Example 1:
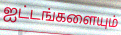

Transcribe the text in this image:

ஐட்டங்களையும்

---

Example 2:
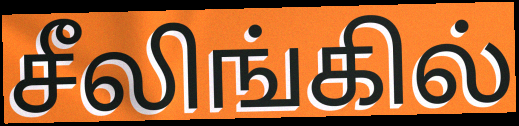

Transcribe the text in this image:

சீலிங்கில்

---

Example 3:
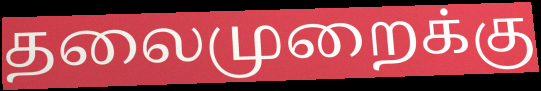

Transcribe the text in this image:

தலைமுறைக்கு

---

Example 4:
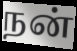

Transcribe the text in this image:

நன்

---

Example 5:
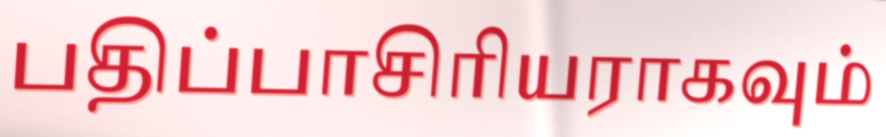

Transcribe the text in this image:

பதிப்பாசிரியராகவும்